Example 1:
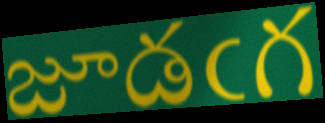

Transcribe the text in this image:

జూడఁగ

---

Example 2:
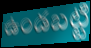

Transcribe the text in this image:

ఉండబట్టి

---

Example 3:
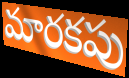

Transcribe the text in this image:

మారకపు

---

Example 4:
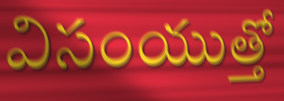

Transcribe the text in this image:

విసంయుత్తో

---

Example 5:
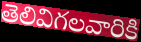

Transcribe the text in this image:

తెలివిగలవారికి